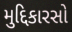
મુદ્દિકારસો